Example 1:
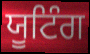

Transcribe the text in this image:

ਯੂਟਿੰਗ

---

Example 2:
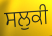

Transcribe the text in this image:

ਸਲੁਕੀ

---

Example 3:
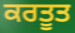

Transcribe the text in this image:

ਕਰਤੂਤ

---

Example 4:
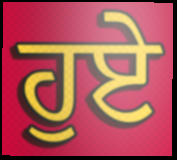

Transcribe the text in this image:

ਹੁਏ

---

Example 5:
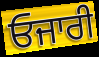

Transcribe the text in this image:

ਓਜਾਰੀ